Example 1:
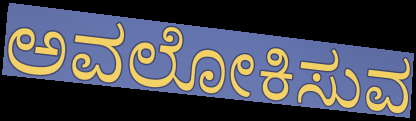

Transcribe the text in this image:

ಅವಲೋಕಿಸುವ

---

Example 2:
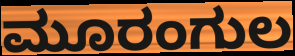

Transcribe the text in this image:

ಮೂರಂಗುಲ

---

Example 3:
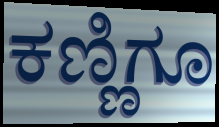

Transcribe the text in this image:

ಕಣ್ಣಿಗೂ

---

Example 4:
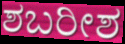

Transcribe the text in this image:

ಶಬರೀಶ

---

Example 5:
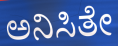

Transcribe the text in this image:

ಅನಿಸಿತೇ